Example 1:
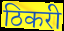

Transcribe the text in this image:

ठिकरी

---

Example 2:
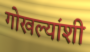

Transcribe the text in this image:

गोखल्यांशी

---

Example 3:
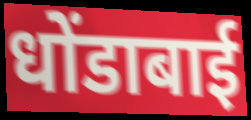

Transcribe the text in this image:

धोंडाबाई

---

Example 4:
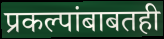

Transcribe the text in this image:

प्रकल्पांबाबतही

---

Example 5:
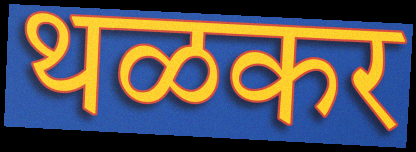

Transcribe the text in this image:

थळकर